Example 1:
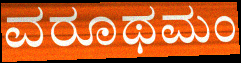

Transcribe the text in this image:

ವರೂಥಮಂ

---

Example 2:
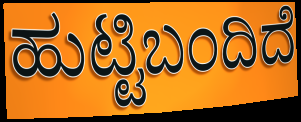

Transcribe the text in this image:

ಹುಟ್ಟಿಬಂದಿದೆ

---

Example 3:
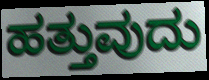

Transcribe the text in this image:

ಹತ್ತುವುದು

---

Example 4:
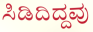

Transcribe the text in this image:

ಸಿಡಿದಿದ್ದವು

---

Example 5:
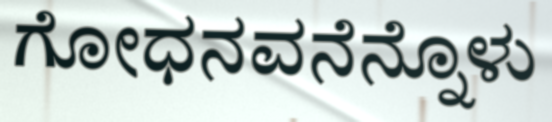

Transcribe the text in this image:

ಗೋಧನವನೆನ್ನೊಳು